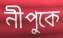
নীপুকে